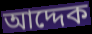
আদ্দেক